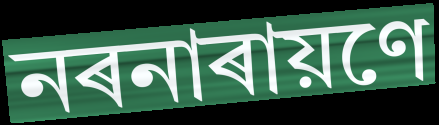
নৰনাৰায়ণে